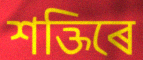
শক্তিৰে